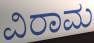
ವಿರಾಮ